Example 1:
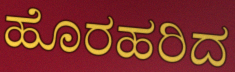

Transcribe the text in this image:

ಹೊರಹರಿದ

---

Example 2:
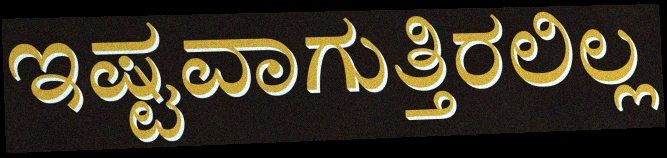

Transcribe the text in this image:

ಇಷ್ಟವಾಗುತ್ತಿರಲಿಲ್ಲ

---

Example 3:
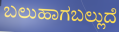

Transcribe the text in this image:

ಬಲುಹಾಗಬಲ್ಲುದೆ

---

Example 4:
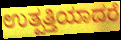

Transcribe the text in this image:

ಉತ್ಪತ್ತಿಯಾದರೆ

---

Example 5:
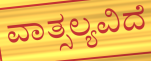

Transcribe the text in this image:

ವಾತ್ಸಲ್ಯವಿದೆ